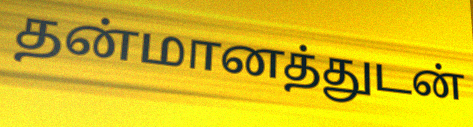
தன்மானத்துடன்